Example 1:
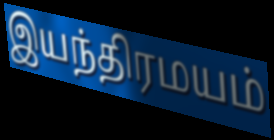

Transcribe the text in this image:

இயந்திரமயம்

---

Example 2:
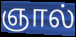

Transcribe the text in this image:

ஞால்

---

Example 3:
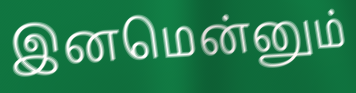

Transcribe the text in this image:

இனமென்னும்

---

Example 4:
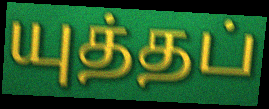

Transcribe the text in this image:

யுத்தப்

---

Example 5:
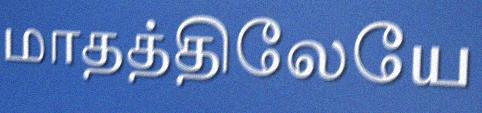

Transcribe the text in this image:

மாதத்திலேயே